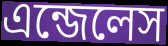
এন্জেলেস